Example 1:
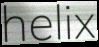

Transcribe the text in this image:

helix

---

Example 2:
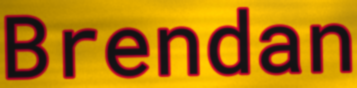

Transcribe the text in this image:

Brendan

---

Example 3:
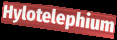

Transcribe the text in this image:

Hylotelephium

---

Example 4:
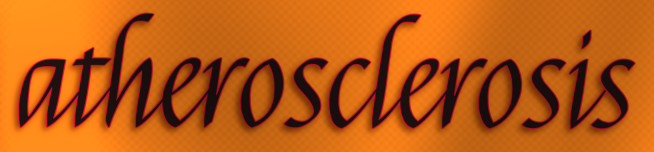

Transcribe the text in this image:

atherosclerosis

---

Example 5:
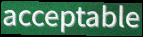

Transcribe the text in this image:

acceptable